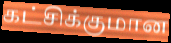
கட்சிக்குமான